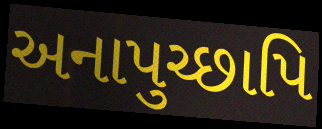
અનાપુચ્છાપિ